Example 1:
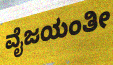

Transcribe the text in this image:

ವೈಜಯಂತೀ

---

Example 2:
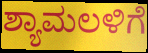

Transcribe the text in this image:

ಶ್ಯಾಮಲಳಿಗೆ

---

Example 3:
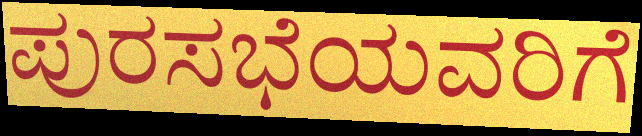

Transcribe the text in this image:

ಪುರಸಭೆಯವರಿಗೆ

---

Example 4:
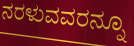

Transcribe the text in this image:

ನರಳುವವರನ್ನೂ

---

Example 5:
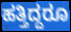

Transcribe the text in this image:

ಹತ್ತಿದ್ದರೂ